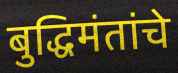
बुद्धिमंतांचे